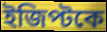
ইজিপ্টকে